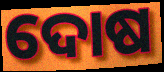
ଦୋଷ